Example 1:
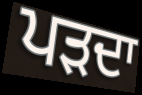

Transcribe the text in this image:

ਪੜਦਾ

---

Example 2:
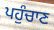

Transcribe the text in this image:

ਪਹੁੰਚਾਣ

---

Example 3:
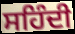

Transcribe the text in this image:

ਸਹਿੰਦੀ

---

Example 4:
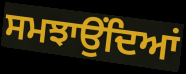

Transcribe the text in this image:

ਸਮਝਾਉਂਦਿਆਂ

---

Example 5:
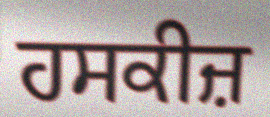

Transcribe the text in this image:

ਹਸਕੀਜ਼